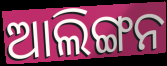
ଆଲିଙ୍ଗନ